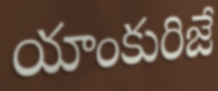
యాంకురిజే